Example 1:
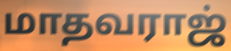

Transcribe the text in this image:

மாதவராஜ்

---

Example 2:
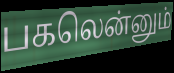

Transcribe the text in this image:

பகலென்னும்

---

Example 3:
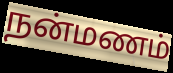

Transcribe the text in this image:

நன்மணம்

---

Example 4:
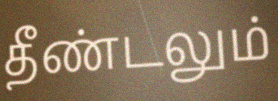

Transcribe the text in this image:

தீண்டலும்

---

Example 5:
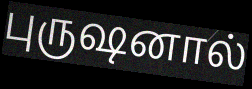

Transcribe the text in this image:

புருஷனால்